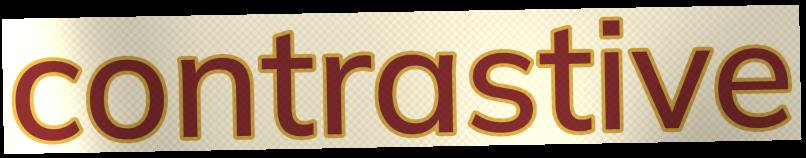
contrastive